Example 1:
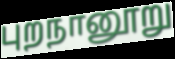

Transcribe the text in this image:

புறநானூறு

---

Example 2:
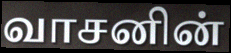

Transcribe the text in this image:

வாசனின்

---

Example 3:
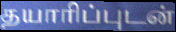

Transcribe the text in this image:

தயாரிப்புடன்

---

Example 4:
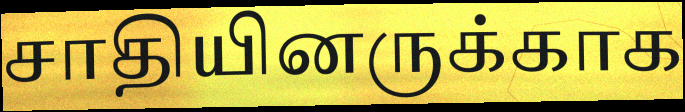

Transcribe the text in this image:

சாதியினருக்காக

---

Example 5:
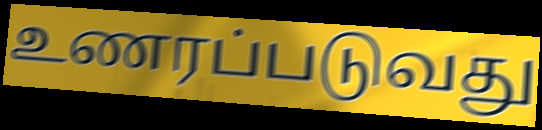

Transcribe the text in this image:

உணரப்படுவது